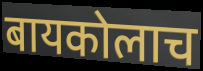
बायकोलाच